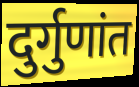
दुर्गुणांत